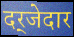
दर्जेदार